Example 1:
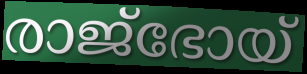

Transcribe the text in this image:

രാജ്ഭോയ്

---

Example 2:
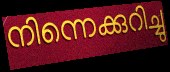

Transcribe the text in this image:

നിന്നെക്കുറിച്ചു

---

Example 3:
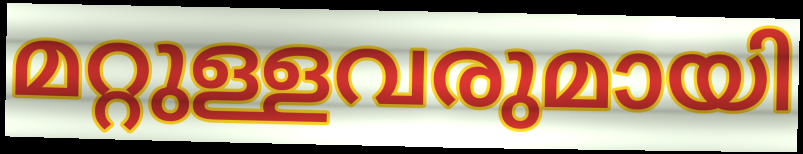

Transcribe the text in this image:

മറ്റുള്ളവരുമായി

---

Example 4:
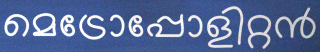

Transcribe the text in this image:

മെട്രോപ്പോളിറ്റൻ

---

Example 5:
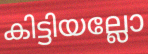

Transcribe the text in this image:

കിട്ടിയല്ലോ